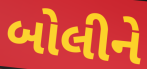
બોલીને